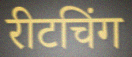
रीटचिंग